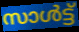
സാൾട്ട്